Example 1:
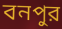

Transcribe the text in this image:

বনপুর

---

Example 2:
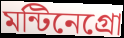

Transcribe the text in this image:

মন্টিনেগ্রো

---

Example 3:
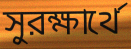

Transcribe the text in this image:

সুরক্ষার্থে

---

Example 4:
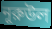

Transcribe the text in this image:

নূরুউল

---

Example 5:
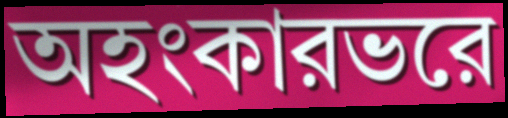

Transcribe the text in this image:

অহংকারভরে